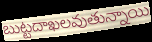
బుట్టదాఖలవుతున్నాయి